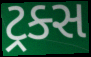
ટ્રક્સ